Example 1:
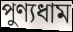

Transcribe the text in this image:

পুণ্যধাম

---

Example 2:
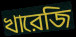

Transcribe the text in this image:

খারেজি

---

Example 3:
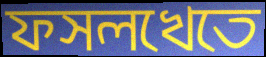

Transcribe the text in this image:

ফসলখেতে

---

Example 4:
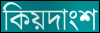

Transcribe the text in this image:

কিয়দাংশ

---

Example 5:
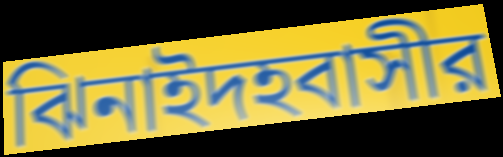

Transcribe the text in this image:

ঝিনাইদহবাসীর